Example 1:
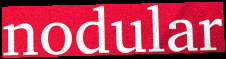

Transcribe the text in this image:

nodular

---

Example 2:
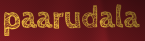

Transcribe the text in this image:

paarudala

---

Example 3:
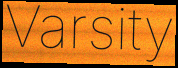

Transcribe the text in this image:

Varsity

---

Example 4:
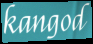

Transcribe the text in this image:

kangod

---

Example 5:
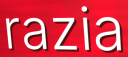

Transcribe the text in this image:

razia